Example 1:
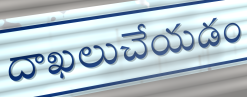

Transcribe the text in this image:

దాఖలుచేయడం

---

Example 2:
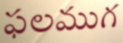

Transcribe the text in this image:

ఫలముగ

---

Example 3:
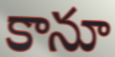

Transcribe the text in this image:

కానూ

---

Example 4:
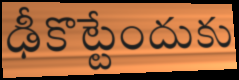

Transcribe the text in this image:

ఢీకొట్టేందుకు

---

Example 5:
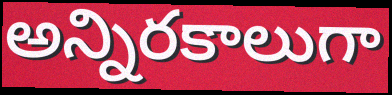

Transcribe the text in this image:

అన్నిరకాలుగా